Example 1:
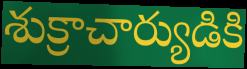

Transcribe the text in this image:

శుక్రాచార్యుడికి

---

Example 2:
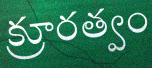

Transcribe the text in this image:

క్రూరత్వం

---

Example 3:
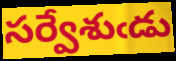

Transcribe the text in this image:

సర్వేశుఁడు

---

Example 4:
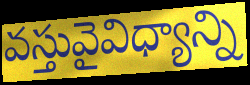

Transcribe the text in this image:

వస్తువైవిధ్యాన్ని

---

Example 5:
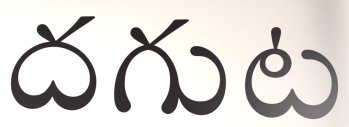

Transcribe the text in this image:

దగుట